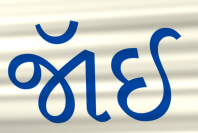
જૉઈ